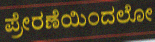
ಪ್ರೇರಣೆಯಿಂದಲೋ